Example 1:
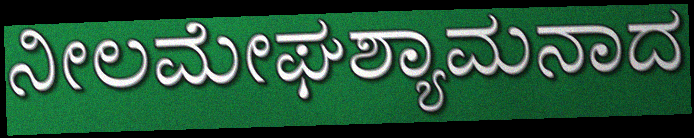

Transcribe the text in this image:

ನೀಲಮೇಘಶ್ಯಾಮನಾದ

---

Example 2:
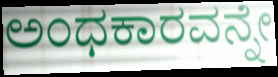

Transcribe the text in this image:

ಅಂಧಕಾರವನ್ನೇ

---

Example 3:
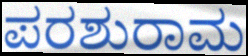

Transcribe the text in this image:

ಪರಶುರಾಮ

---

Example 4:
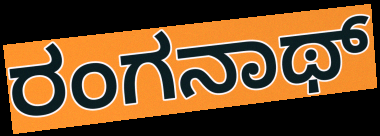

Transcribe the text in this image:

ರಂಗನಾಥ್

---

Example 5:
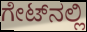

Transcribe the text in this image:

ಗೇಟ್‌ನಲ್ಲಿ